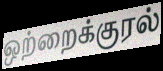
ஒற்றைக்குரல்